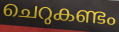
ചെറുകണ്ടം